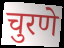
चुरणे